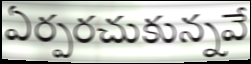
ఏర్పరచుకున్నవే